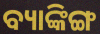
ବ୍ୟାଙ୍କିଙ୍ଗ